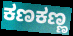
ಕಣಕಣ್ಣ